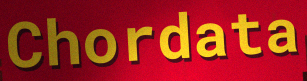
Chordata